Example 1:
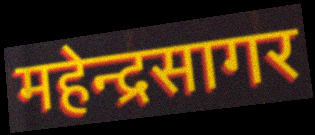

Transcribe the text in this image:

महेन्द्रसागर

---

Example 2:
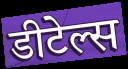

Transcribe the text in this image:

डीटेल्स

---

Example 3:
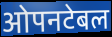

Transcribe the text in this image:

ओपनटेबल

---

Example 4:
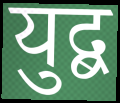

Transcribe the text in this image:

युद्ब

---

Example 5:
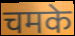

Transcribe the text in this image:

चमके